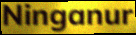
Ninganur